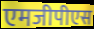
एमजीपीएस